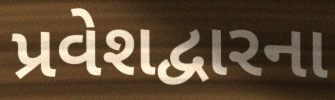
પ્રવેશદ્વારના